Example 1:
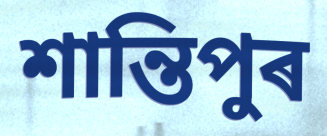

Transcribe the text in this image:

শান্তিপুৰ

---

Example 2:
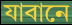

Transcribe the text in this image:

যাবানে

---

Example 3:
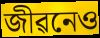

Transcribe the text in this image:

জীৱনেও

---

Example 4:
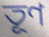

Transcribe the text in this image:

তূণ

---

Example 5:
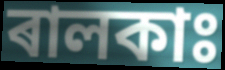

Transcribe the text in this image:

ৰালকাঃ